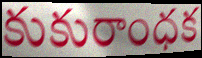
కుకురాంధక